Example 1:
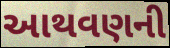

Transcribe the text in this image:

આથવણની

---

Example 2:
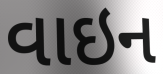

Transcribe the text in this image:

વાઇન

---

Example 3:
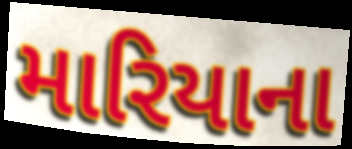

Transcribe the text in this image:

મારિયાના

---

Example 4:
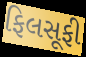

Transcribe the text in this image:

ફિલસૂફી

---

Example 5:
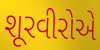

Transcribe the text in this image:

શૂરવીરોએ